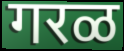
गरळ